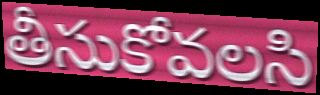
తీసుకోవలసి